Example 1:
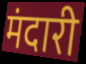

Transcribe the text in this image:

मंदारी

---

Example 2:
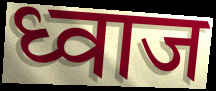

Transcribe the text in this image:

ध्वाज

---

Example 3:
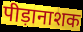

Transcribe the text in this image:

पीड़ानाशक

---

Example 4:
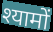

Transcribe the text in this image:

श्यामों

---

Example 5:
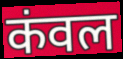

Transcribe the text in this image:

कंवल